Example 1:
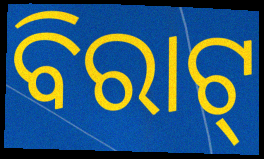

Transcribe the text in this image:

ବିରାଟ୍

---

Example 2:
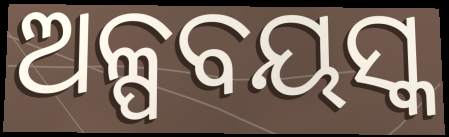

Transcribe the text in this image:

ଅଳ୍ପବୟସ୍କ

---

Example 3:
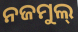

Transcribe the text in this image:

ନଜମୁଲ୍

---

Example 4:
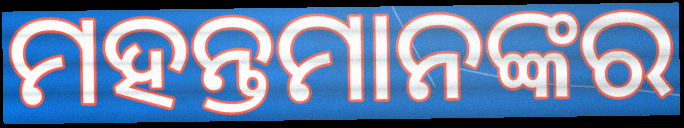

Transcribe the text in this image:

ମହନ୍ତମାନଙ୍କର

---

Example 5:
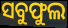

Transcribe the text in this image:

ସବୁଫୁଲ